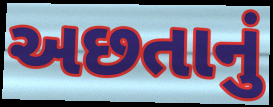
અછતાનું